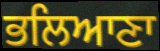
ਭਲਿਆਣਾ